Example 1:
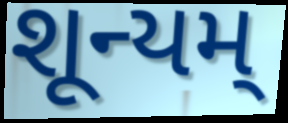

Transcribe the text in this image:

શૂન્યમ્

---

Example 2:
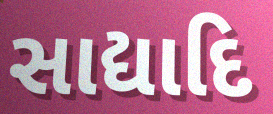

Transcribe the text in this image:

સાદ્યાદિ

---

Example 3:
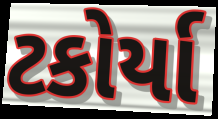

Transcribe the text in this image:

ટકોર્યા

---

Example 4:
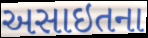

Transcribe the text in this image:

અસાઇતના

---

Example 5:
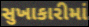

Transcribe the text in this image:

સુખાકારીમાં